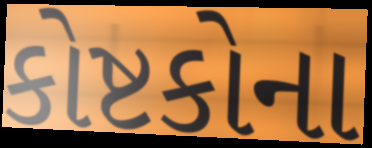
કોષ્ટકોના